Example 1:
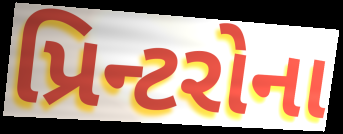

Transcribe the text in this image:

પ્રિન્ટરોના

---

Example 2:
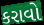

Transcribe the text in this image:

કરાવો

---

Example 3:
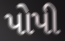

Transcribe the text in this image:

પોપી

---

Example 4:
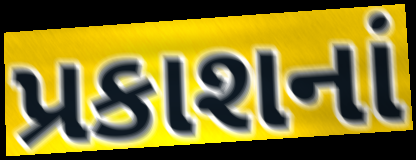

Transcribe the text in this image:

પ્રકાશનાં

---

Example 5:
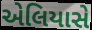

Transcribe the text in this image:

એલિયાસે